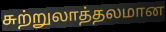
சுற்றுலாத்தலமான